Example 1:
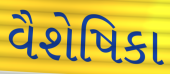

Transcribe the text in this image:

વૈશેષિકા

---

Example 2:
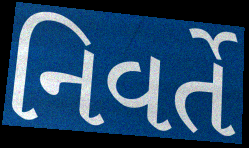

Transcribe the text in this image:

નિવર્તે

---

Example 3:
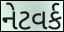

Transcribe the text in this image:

નેટવર્ક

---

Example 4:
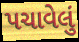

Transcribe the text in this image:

પચાવેલું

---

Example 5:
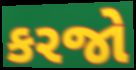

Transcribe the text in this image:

કરજો